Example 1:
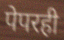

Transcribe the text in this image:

पेपरही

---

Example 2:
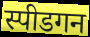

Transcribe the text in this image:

स्पीडगन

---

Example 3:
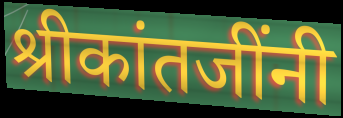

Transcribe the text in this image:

श्रीकांतजींनी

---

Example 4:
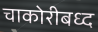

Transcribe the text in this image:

चाकोरीबध्द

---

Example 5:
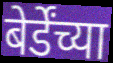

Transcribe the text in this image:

बेर्डेंच्या